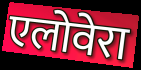
एलोवेरा